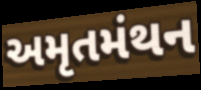
અમૃતમંથન